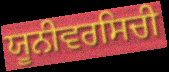
ਯੂਨੀਵਰਸਿਚੀ